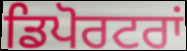
ਡਿਪੋਰਟਰਾਂ